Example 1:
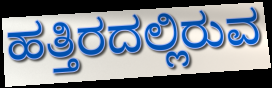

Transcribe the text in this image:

ಹತ್ತಿರದಲ್ಲಿರುವ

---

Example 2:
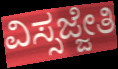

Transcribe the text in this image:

ವಿಸ್ಸಜ್ಜೇತಿ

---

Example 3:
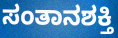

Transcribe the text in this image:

ಸಂತಾನಶಕ್ತಿ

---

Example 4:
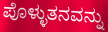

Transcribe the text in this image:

ಪೊಳ್ಳುತನವನ್ನು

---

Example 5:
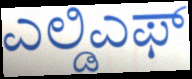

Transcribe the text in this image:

ಎಲ್ಡಿಎಫ್